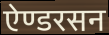
ऐण्डरसन